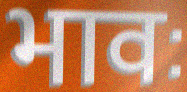
भावः